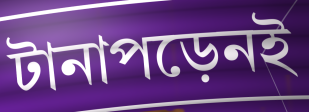
টানাপড়েনই